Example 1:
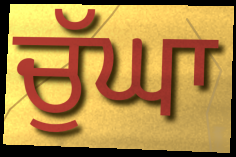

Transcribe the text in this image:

ਚੁੱਘਾ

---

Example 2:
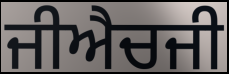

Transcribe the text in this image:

ਜੀਐਚਜੀ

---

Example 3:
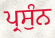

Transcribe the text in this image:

ਪ੍ਰਸੁੰਨ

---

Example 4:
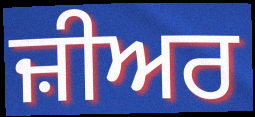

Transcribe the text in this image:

ਜ਼ੀਅਰ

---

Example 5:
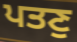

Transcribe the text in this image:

ਪਤਣੁ